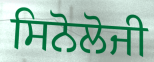
ਸਿਨੋਲੋਜੀ